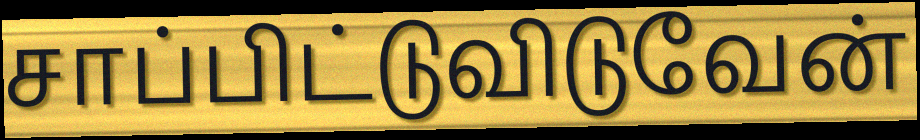
சாப்பிட்டுவிடுவேன்